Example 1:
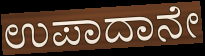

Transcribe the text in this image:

ಉಪಾದಾನೇ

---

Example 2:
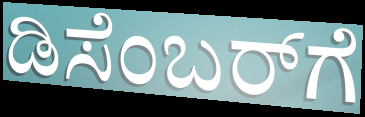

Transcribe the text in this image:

ಡಿಸೆಂಬರ್‌ಗೆ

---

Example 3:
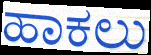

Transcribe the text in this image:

ಹಾಕಲು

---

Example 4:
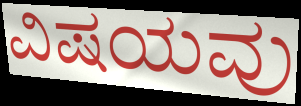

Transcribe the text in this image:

ವಿಷಯವು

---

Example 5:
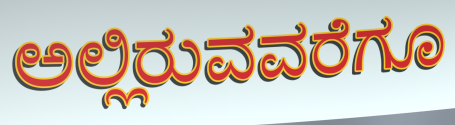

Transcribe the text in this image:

ಅಲ್ಲಿರುವವರೆಗೂ